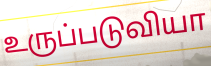
உருப்படுவியா